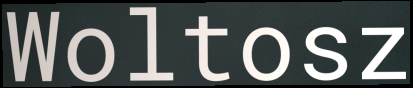
Woltosz